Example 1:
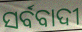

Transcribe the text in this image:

ସର୍ବବାଦୀ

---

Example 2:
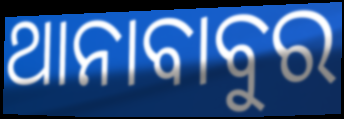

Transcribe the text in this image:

ଥାନାବାବୁର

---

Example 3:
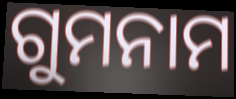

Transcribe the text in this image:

ଗୁମନାମ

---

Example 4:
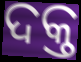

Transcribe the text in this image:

ଦକ୍ତ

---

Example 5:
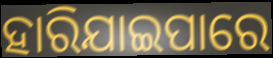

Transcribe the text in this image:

ହାରିଯାଇପାରେ